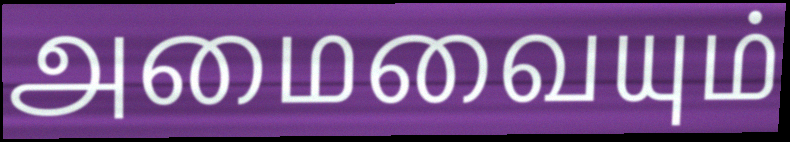
அமைவையும்